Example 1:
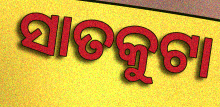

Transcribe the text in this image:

ସାତକୁଟା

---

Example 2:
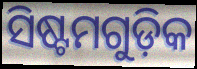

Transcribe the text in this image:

ସିଷ୍ଟମଗୁଡ଼ିକ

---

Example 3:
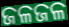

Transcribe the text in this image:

ଜଳଜଳ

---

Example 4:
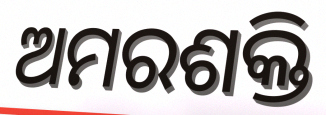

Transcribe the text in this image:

ଅମରଶକ୍ତି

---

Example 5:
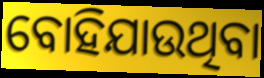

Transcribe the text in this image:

ବୋହିଯାଉଥିବା